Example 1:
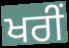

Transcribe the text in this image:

ਖਰੀਂ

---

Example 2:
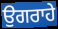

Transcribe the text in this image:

ਉਗਰਾਹੇ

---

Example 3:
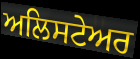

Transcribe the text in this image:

ਅਲਿਸਟੇਅਰ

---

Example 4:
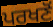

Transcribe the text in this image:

ਪਰਖਣੋਂ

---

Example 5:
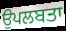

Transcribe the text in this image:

ਉਪਲਬਤਾ